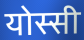
योस्सी